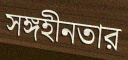
সঙ্গহীনতার